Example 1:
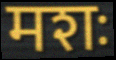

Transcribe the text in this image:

मशः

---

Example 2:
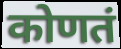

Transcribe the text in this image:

कोणतं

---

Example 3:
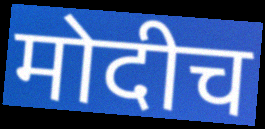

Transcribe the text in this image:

मोदीच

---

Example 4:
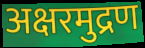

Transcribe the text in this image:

अक्षरमुद्रण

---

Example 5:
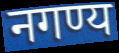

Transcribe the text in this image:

नगण्य